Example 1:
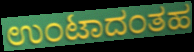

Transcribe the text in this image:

ಉಂಟಾದಂತಹ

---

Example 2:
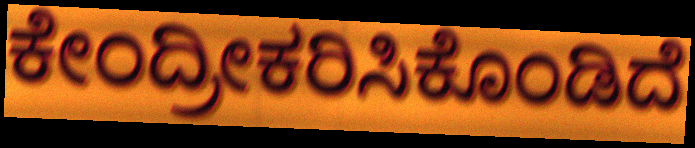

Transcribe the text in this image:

ಕೇಂದ್ರೀಕರಿಸಿಕೊಂಡಿದೆ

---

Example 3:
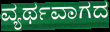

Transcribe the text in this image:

ವ್ಯರ್ಥವಾಗದ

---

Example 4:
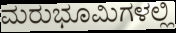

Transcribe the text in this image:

ಮರುಭೂಮಿಗಳಲ್ಲಿ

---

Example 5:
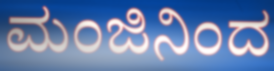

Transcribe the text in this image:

ಮಂಜಿನಿಂದ